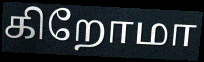
கிறோமா